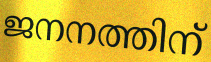
ജനനത്തിന്